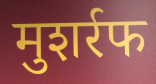
मुशर्रफ